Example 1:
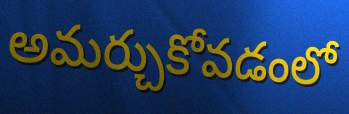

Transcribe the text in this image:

అమర్చుకోవడంలో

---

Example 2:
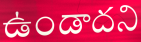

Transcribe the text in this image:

ఉండాదని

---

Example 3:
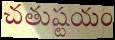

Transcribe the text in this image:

చతుష్టయం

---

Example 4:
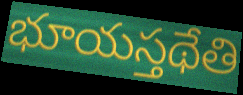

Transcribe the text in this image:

భూయస్తథేతి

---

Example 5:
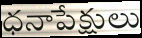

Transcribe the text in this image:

ధనాపేక్షులు